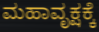
ಮಹಾವೃಕ್ಷಕ್ಕೆ